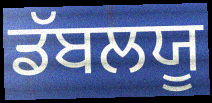
ਡੱਬਲਯੂ